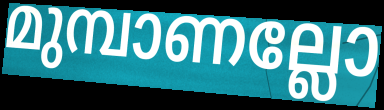
മുമ്പാണല്ലോ